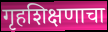
गृहशिक्षणाचा